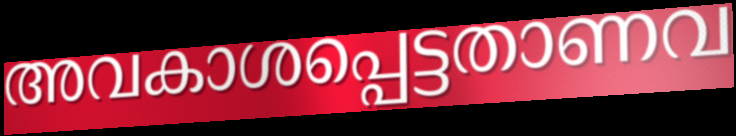
അവകാശപ്പെട്ടതാണവ